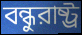
বন্ধুরাষ্ট্র